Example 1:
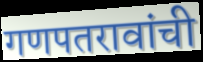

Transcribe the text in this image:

गणपतरावांची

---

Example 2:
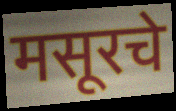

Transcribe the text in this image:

मसूरचे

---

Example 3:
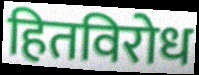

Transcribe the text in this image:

हितविरोध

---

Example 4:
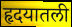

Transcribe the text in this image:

हृदयातली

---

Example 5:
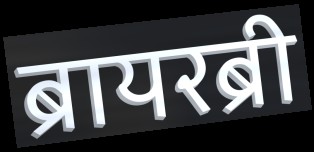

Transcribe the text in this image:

ब्रायरब्री